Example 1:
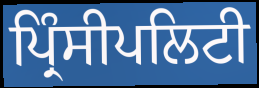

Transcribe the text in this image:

ਪ੍ਰਿੰਸੀਪਲਿਟੀ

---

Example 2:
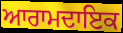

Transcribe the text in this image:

ਆਰਾਮਦਾਇਕ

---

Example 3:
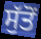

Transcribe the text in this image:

ਸੁੱਤੋਂ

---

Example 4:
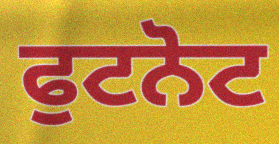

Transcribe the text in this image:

ਫੁਟਨੋਟ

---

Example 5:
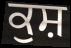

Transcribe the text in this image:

ਕੁਸ਼